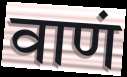
वाणं